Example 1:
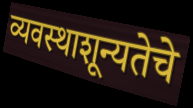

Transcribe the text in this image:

व्यवस्थाशून्यतेचे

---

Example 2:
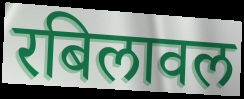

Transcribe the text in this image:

रबिलावल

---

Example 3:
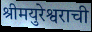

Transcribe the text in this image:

श्रीमयुरेश्वराची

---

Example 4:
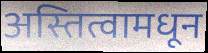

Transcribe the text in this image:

अस्तित्वामधून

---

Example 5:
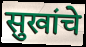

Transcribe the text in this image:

सुखांचे